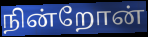
நின்றோன்